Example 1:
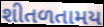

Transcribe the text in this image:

શીતળતામય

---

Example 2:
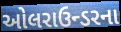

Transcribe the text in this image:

ઓલરાઉન્ડરના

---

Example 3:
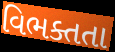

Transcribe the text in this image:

વિભક્તતા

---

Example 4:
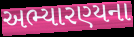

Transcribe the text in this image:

અભ્યારણ્યના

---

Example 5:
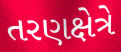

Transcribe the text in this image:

તરણક્ષેત્રે